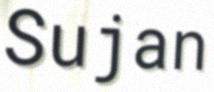
Sujan